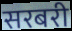
सरबरी